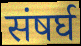
संषर्घ